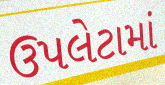
ઉપલેટામાં